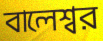
বালেশ্বর